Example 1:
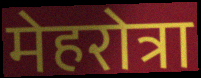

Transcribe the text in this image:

मेहरोत्रा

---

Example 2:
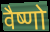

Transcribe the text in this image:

वैष्णो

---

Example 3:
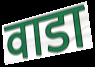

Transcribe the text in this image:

वाडा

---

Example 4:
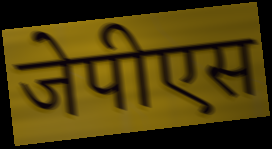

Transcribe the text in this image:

जेपीएस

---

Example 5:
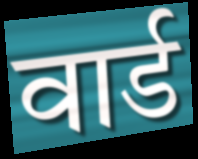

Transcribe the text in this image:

वार्ड